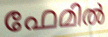
ഫേമിൽ